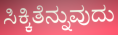
ಸಿಕ್ಕಿತೆನ್ನುವುದು